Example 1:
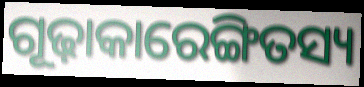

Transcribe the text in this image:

ଗୂଢ଼ାକାରେଙ୍ଗିତସ୍ୟ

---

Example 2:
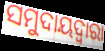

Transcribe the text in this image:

ସମୁଦାୟଦ୍ୱାରା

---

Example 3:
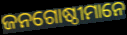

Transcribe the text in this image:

ଜନଗୋଷ୍ଠୀମାନେ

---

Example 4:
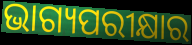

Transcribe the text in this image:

ଭାଗ୍ୟପରୀକ୍ଷାର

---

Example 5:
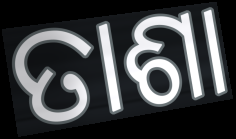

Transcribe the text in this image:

ତାଶା